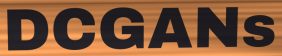
DCGANs